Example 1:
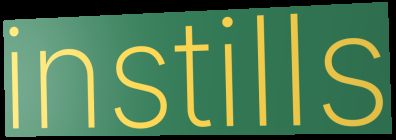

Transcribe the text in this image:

instills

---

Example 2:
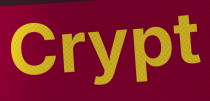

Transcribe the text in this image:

Crypt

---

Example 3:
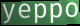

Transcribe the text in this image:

yeppo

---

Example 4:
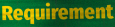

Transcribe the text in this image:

Requirement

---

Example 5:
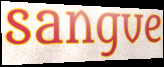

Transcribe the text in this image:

sangue